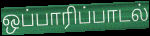
ஒப்பாரிப்பாடல்